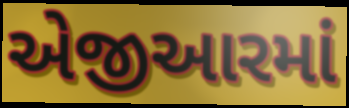
એજીઆરમાં